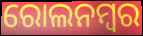
ରୋଲନମ୍ବର